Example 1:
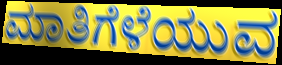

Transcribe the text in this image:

ಮಾತಿಗೆಳೆಯುವ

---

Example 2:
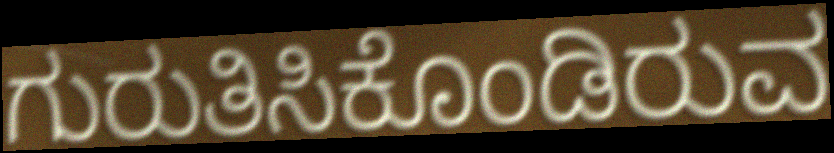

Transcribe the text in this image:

ಗುರುತಿಸಿಕೊಂಡಿರುವ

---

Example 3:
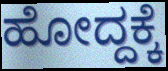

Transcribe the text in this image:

ಹೋದ್ದಕ್ಕೆ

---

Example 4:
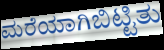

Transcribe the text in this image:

ಮರೆಯಾಗಿಬಿಟ್ಟಿತು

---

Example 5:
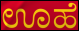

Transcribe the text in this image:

ಊಹೆ